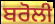
ਬਰੋਲੀ